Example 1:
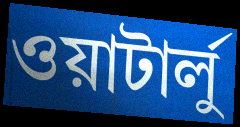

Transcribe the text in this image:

ওয়াটার্লু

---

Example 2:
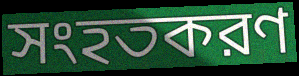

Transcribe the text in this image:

সংহতকরণ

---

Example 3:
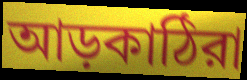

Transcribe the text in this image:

আড়কাঠিরা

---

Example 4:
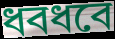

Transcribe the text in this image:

ধবধবে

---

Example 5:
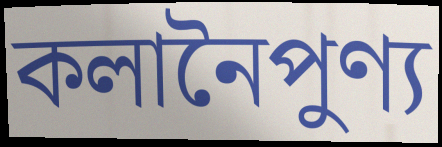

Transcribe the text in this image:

কলানৈপুণ্য